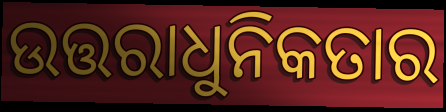
ଉତ୍ତରାଧୁନିକତାର